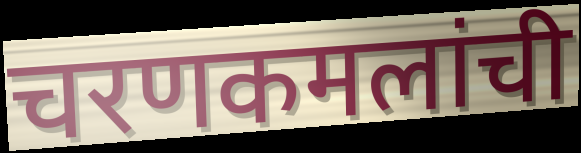
चरणकमलांची